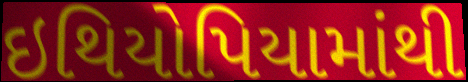
ઇથિયોપિયામાંથી